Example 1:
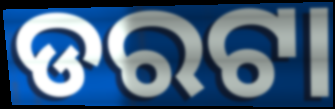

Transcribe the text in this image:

ଡରଟା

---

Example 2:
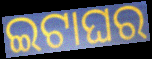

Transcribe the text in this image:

ଇଟାଘର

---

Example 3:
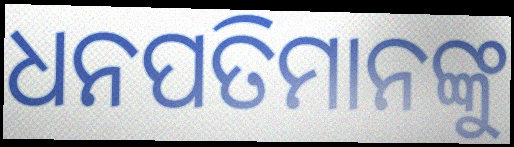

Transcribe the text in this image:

ଧନପତିମାନଙ୍କୁ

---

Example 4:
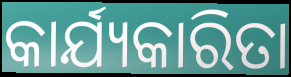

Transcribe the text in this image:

କାର୍ଯ୍ୟକାରିତା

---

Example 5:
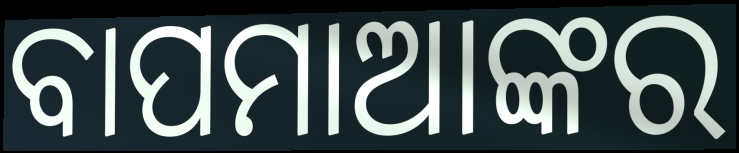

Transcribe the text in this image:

ବାପମାଆଙ୍କର